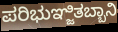
ಪರಿಭುಞ್ಜಿತಬ್ಬಾನಿ